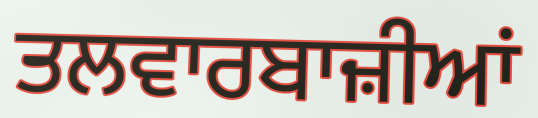
ਤਲਵਾਰਬਾਜ਼ੀਆਂ